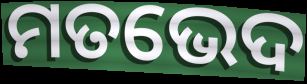
ମତଭେଦ